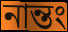
নান্তং